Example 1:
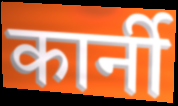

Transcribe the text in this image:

कार्नी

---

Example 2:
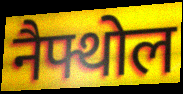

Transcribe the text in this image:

नैफ्थोल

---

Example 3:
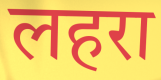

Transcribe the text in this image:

लहरा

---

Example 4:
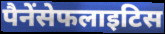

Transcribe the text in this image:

पैनेंसेफलाइटिस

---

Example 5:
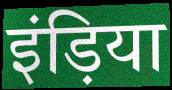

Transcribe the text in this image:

इंड़िया